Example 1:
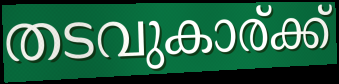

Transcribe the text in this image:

തടവുകാര്ക്ക്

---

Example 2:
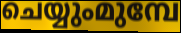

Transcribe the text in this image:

ചെയ്യുംമുമ്പേ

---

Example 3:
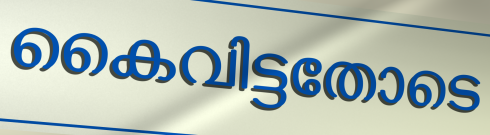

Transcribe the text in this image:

കൈവിട്ടതോടെ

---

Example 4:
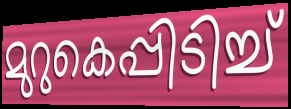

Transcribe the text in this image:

മുറുകെപ്പിടിച്ച്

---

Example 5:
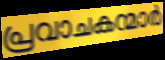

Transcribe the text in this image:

പ്രവാചകന്മാർ